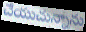
చేయుచున్నాను